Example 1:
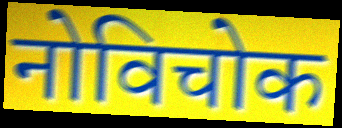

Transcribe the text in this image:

नोविचोक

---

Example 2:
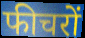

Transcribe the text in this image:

फीचरों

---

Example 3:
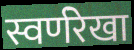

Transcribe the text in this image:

स्वर्णरेखा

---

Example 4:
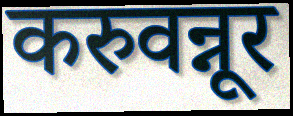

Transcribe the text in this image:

करुवन्नूर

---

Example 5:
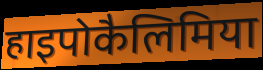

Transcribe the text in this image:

हाइपोकैलिमिया